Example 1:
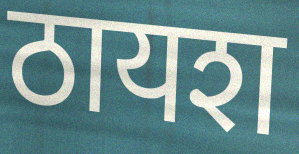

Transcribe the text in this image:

ठायश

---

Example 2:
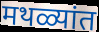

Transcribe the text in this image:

मथळ्यांत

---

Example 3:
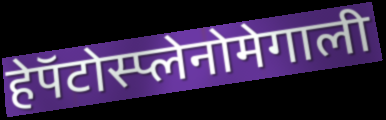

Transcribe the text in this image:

हेपॅटोस्प्लेनोमेगाली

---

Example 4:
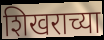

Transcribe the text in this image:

शिखराच्या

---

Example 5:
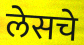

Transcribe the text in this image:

लेसचे